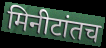
मिनीटांतच